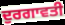
ਦੁਰਗਾਵਤੀ